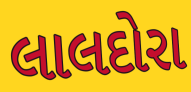
લાલદોરા